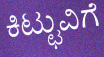
ಕಿಟ್ಟುವಿಗೆ